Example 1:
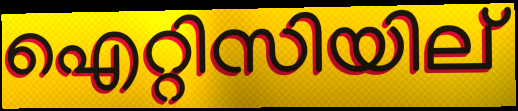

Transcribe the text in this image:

ഐറ്റിസിയില്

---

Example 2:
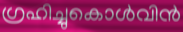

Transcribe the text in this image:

ഗ്രഹിച്ചുകൊൾവിൻ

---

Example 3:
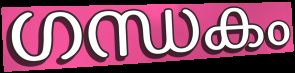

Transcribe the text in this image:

ഗന്ധകം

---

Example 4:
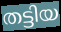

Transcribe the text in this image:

തട്ടിയ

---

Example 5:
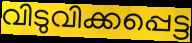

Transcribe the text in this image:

വിടുവിക്കപ്പെട്ട